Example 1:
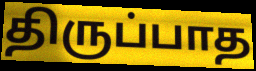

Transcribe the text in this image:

திருப்பாத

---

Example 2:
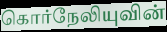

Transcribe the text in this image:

கொர்நேலியுவின்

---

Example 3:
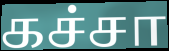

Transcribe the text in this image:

கச்சா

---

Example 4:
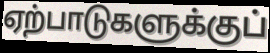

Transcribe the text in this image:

ஏற்பாடுகளுக்குப்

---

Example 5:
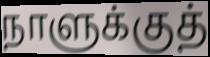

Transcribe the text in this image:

நாளுக்குத்